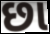
છા